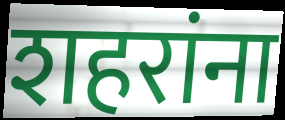
शहरांना